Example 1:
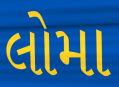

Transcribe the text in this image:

લોમા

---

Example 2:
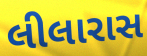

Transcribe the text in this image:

લીલારાસ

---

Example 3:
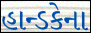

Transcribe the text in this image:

હાન્ડકેના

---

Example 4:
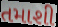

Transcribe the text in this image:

તમાશી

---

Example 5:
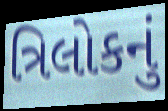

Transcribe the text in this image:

ત્રિલોકનું